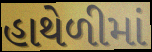
હાથેળીમાં